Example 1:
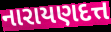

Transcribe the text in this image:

નારાયણદત્ત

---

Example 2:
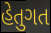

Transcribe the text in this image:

હેતુગત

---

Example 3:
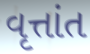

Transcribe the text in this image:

વૃત્તાંત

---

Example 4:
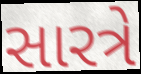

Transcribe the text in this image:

સારત્રે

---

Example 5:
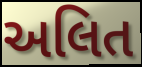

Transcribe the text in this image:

અલિત